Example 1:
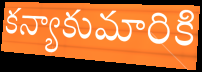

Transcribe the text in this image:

కన్యాకుమారికి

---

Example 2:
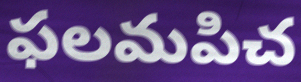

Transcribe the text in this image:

ఫలమపిచ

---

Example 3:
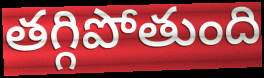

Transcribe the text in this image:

తగ్గిపోతుంది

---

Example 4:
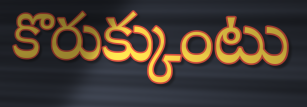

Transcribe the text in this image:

కొరుక్కుంటు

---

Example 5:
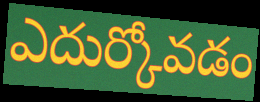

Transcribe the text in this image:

ఎదుర్కోవడం